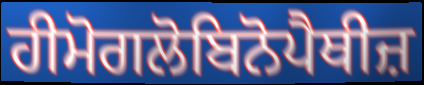
ਹੀਮੋਗਲੋਬਿਨੋਪੈਥੀਜ਼